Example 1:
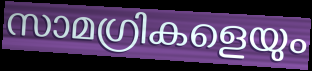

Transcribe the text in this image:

സാമഗ്രികളെയും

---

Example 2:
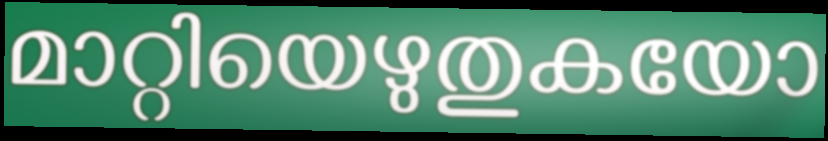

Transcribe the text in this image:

മാറ്റിയെഴുതുകയോ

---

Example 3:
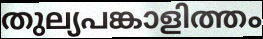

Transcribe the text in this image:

തുല്യപങ്കാളിത്തം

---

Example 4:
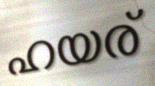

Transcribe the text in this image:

ഹയര്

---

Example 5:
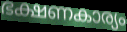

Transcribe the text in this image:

ഭക്ഷണകാര്യം